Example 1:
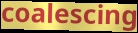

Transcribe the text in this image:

coalescing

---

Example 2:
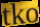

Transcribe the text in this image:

tko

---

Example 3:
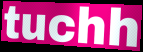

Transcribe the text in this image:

tuchh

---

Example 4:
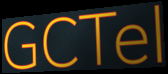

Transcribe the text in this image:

GCTel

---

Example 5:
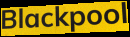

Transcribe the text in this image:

Blackpool